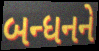
બન્ધનને